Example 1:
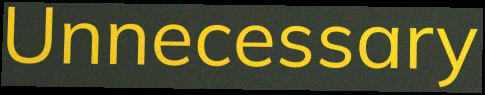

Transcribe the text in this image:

Unnecessary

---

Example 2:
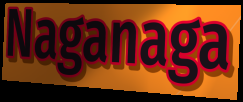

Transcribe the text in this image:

Naganaga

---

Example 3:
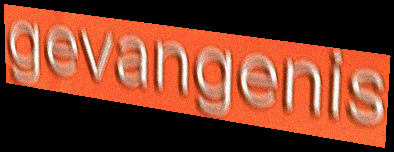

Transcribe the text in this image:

gevangenis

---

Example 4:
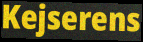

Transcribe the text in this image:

Kejserens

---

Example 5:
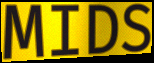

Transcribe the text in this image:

MIDS